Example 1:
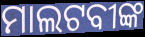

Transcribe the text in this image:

ମାଲଟବୀଙ୍କ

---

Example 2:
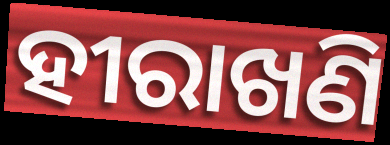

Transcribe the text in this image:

ହୀରାଖଣି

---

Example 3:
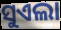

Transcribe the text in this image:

ସୁଏଲା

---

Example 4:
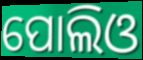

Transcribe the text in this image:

ପୋଲିଓ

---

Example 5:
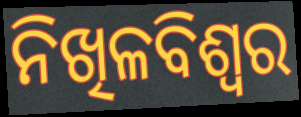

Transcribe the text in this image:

ନିଖିଳବିଶ୍ୱର